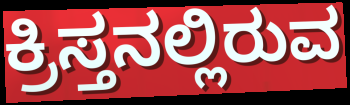
ಕ್ರಿಸ್ತನಲ್ಲಿರುವ